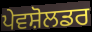
ਪੇਵਸ਼ੋਲਡਰ